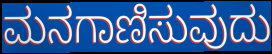
ಮನಗಾಣಿಸುವುದು